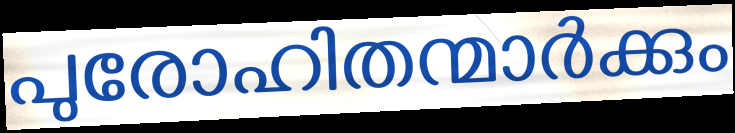
പുരോഹിതന്മാർക്കും